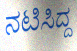
ನಟಿಸಿದ್ದ